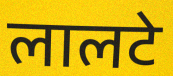
लालटे